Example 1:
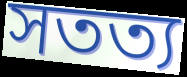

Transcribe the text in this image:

সতত্য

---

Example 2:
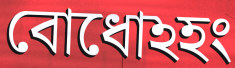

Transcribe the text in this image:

বোধোঽহং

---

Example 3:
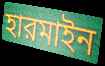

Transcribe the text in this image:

হারমাইন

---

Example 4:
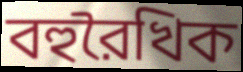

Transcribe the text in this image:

বহুরৈখিক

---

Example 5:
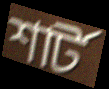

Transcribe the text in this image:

শার্ট